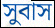
সুবাস